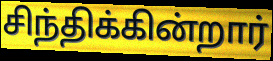
சிந்திக்கின்றார்